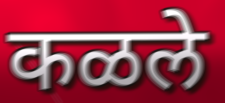
कळले